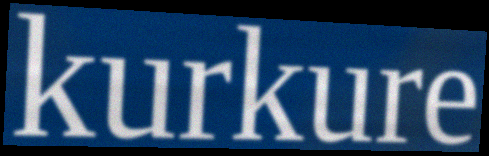
kurkure